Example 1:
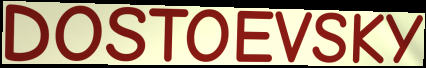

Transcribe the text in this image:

DOSTOEVSKY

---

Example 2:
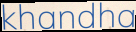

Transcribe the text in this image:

khandha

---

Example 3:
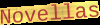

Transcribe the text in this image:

Novellas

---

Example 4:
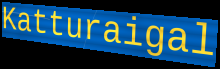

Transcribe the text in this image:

Katturaigal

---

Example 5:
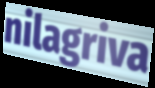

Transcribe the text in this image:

nilagriva